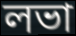
লভা